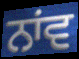
ਨਾਂਵ